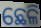
ଛେଳି